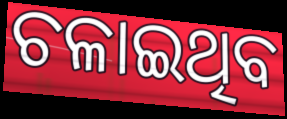
ଚଳାଇଥିବ